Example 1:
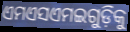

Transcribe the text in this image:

ଏମଏସଏମଇଗୁଡ଼ିକୁ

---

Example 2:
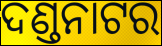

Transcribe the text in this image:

ଦଣ୍ଡନାଟର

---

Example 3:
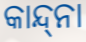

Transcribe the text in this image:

କାନ୍ଦ୍‌ନା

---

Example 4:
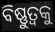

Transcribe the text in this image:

ବିଷ୍ଣୁତ୍ୱକୁ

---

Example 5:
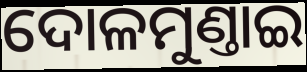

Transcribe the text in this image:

ଦୋଳମୁଣ୍ତାଇ